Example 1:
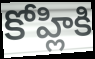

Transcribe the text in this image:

కోహ్లికి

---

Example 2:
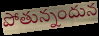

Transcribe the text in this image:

పోతున్నందున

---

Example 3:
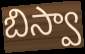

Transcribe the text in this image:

బిస్వా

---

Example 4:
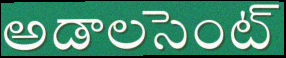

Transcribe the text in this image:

అడాలసెంట్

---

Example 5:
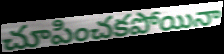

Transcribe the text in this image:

చూపించకపోయినా